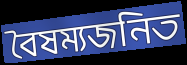
বৈষম্যজনিত